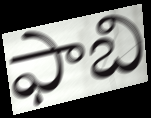
ఫాబి